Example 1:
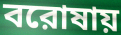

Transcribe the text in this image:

বরোষায়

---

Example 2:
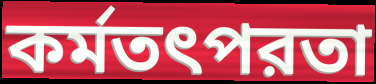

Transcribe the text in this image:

কর্মতৎপরতা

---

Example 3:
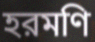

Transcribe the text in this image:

হরমণি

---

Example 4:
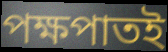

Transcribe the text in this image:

পক্ষপাতই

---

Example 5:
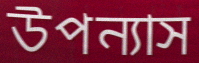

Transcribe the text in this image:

উপন্যাস